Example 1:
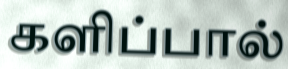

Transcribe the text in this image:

களிப்பால்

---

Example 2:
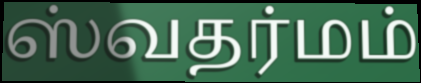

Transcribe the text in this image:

ஸ்வதர்மம்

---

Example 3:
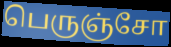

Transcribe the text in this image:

பெருஞ்சோ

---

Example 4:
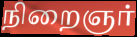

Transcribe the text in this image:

நிறைஞர்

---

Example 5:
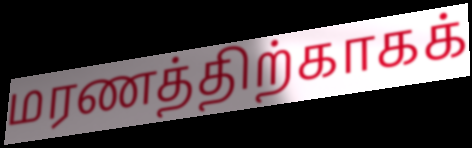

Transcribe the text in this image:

மரணத்திற்காகக்